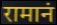
रामानं